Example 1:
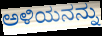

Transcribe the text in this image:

ಅಳಿಯನನ್ನು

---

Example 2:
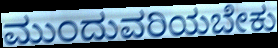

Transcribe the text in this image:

ಮುಂದುವರಿಯಬೇಕು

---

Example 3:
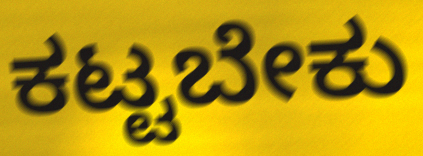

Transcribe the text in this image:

ಕಟ್ಟಬೇಕು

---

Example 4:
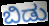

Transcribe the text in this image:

ಬಿಡು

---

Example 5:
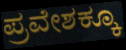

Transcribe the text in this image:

ಪ್ರವೇಶಕ್ಕೂ